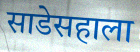
साडेसहाला